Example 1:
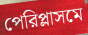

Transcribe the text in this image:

পেরিপ্লাসমে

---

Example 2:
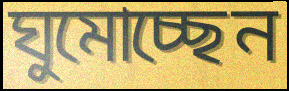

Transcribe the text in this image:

ঘুমোচ্ছেন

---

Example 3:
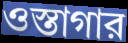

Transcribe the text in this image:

ওস্তাগার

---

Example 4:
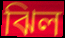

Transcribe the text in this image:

ঝিল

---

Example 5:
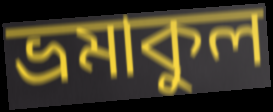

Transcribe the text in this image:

ভ্রমাকুল